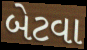
બેટવા